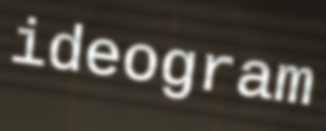
ideogram